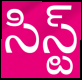
సిస్ట్